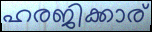
ഹരജിക്കാര്